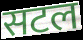
सटल